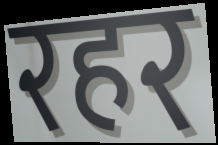
रहर